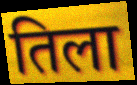
तिला